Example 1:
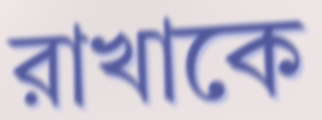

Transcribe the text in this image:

রাখাকে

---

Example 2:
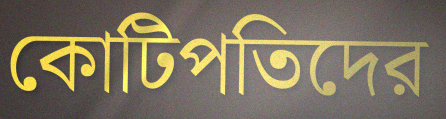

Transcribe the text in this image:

কোটিপতিদের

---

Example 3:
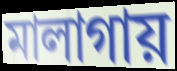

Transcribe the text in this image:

মালাগায়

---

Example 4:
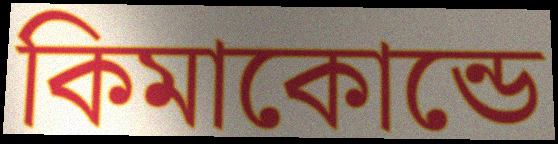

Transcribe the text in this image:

কিমাকোন্ডে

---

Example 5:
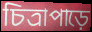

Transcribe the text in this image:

চিত্রাপাড়ে